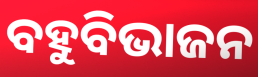
ବହୁବିଭାଜନ